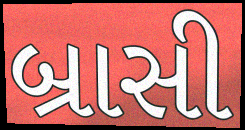
બ્રાસી